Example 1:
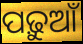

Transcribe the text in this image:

ପଢ଼ୁଆଁ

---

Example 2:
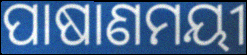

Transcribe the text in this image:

ପାଷାଣମୟୀ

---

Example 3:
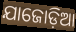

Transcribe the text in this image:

ଯାଜୋଡ଼ିଆ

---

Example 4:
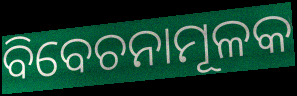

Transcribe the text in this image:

ବିବେଚନାମୂଳକ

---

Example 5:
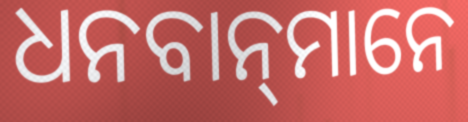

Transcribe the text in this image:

ଧନବାନ୍‍ମାନେ